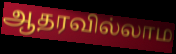
ஆதரவில்லாம